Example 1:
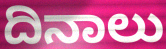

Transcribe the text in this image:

ದಿನಾಲು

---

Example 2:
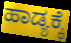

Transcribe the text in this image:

ಹಾಡ್ಯಕ್ಕೆ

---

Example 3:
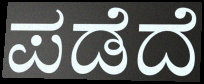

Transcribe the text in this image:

ಪಡೆದೆ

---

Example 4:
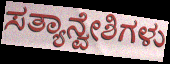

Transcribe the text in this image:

ಸತ್ಯಾನ್ವೇಶಿಗಳು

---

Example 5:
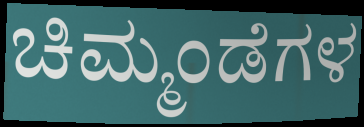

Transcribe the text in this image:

ಚಿಮ್ಮಂಡೆಗಳ